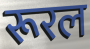
रूरल